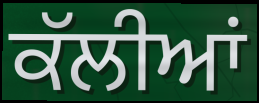
ਕੱਲੀਆਂ